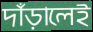
দাঁড়ালেই